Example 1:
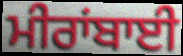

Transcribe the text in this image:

ਮੀਰਾਂਬਾਈ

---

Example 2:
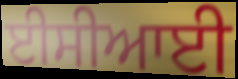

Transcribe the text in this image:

ਈਸੀਆਈ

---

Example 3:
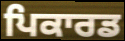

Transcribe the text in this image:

ਪਿਕਾਰਡ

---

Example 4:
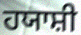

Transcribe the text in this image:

ਹਯਾਸ਼ੀ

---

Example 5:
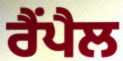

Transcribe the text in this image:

ਰੈਂਪੈਲ